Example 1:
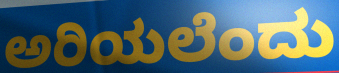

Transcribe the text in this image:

ಅರಿಯಲೆಂದು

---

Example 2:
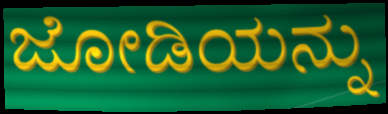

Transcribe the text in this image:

ಜೋಡಿಯನ್ನು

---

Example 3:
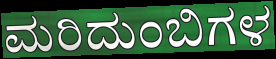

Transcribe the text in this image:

ಮರಿದುಂಬಿಗಳ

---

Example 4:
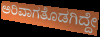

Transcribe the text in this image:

ಅರಿವಾಗತೊಡಗಿದ್ದೇ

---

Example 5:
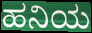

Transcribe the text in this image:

ಹನಿಯ